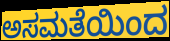
ಅಸಮತೆಯಿಂದ